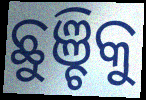
ଛୁଞ୍ଚିକୁ